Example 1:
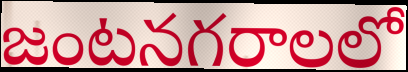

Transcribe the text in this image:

జంటనగరాలలో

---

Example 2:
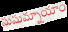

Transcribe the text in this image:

సుషుమ్నాయాం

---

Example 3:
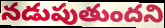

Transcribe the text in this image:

నడుపుతుందని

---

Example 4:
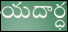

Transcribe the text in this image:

యదార్ధ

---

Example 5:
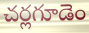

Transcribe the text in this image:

చర్లగూడెం